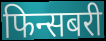
फिन्सबरी